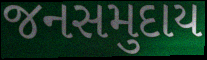
જનસમુદાય